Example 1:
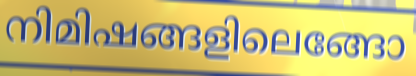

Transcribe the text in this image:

നിമിഷങ്ങളിലെങ്ങോ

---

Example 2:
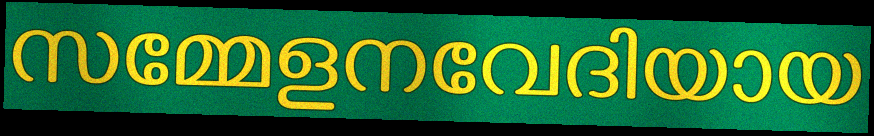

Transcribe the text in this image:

സമ്മേളനവേദിയായ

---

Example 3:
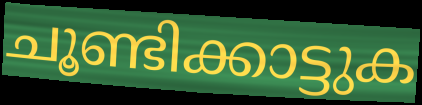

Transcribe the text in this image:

ചൂണ്ടിക്കാട്ടുക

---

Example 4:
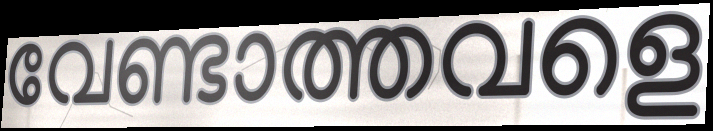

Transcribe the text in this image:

വേണ്ടാത്തവളെ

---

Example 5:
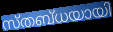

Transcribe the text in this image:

സ്തബ്ധയായി